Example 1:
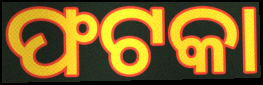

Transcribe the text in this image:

ଫଟକା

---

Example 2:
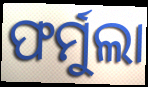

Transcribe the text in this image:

ଫର୍ମୁଲା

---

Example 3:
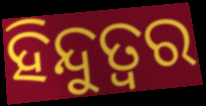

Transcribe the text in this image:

ହିନ୍ଦୁତ୍ବର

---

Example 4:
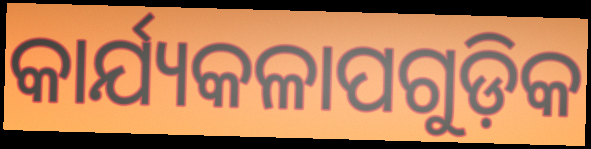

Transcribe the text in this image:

କାର୍ଯ୍ୟକଳାପଗୁଡ଼ିକ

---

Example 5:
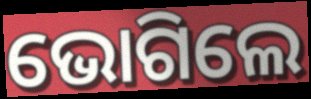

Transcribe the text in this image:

ଭୋଗିଲେ